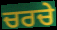
ਚਰਚੇ